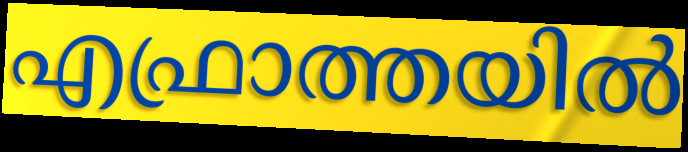
എഫ്രാത്തയിൽ